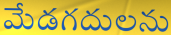
మేడగదులను